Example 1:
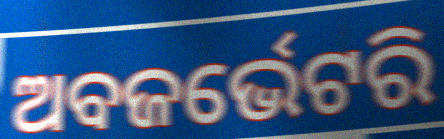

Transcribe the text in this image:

ଅବଜର୍ଭେଟରି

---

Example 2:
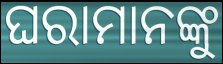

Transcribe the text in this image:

ଘରାମାନଙ୍କୁ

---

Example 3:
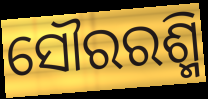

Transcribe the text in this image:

ସୌରରଶ୍ମି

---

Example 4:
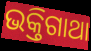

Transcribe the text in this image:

ଭକ୍ତିଗାଥା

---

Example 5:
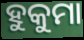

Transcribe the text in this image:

ହୁକୁମା